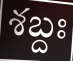
శబ్దః